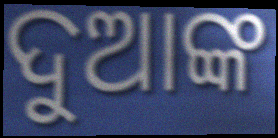
ଦୁଆଙ୍କ